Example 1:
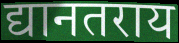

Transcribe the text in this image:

द्यानतराय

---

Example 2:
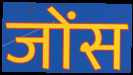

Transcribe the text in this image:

जोंस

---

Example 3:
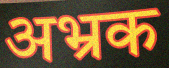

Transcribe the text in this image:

अभ्रक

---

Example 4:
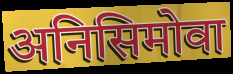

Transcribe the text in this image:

अनिसिमोवा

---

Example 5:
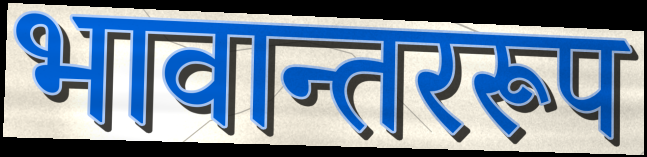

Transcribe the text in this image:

भावान्तररूप